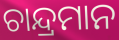
ଚାନ୍ଦ୍ରମାନ